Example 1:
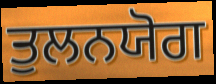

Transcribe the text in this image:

ਤੁਲਨਯੋਗ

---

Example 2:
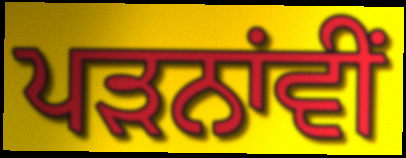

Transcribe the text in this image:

ਪੜਨਾਂਵੀਂ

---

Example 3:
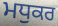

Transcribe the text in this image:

ਮਧੁਕਰ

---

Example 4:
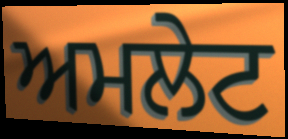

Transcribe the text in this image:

ਅਮਲੇਟ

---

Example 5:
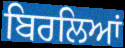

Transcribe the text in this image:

ਬਿਰਲਿਆਂ